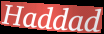
Haddad